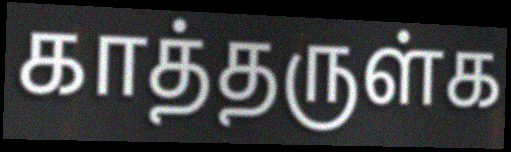
காத்தருள்க